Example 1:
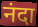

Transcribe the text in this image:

नंदा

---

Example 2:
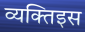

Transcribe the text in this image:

व्यक्तिइस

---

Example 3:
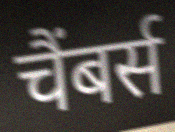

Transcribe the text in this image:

चैंबर्स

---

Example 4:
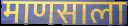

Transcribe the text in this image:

माणसाला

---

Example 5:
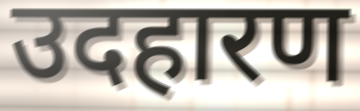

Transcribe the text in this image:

उदहारण